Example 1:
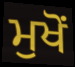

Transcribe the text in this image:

ਮੁਖੋਂ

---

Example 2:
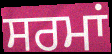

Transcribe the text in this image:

ਸਰਮਾਂ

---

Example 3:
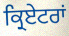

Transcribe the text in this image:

ਕ੍ਰਿਏਟਰਾਂ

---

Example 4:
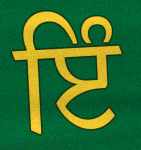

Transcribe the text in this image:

ਇੰ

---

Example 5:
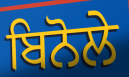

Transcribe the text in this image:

ਬਿਨੋਲੇ